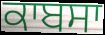
ਕਾਬਸਾ